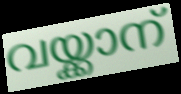
വയ്ക്കാന്